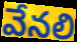
వేనలి